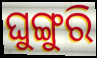
ଘୁଙ୍ଗୁରି